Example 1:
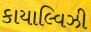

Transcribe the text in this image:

કાયાલ્વિઝી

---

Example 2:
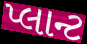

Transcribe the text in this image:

પ્લાન્ટ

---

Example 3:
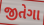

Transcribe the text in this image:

જીતેગા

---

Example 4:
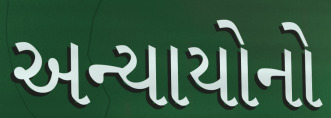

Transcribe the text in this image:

અન્યાયોનો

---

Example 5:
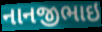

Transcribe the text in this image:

નાનજીભાઇ